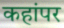
कहांपर